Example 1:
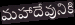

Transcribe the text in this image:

మహాదేవునికి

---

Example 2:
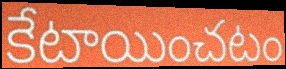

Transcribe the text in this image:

కేటాయించటం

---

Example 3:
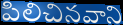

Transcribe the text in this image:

పిలిచినవాని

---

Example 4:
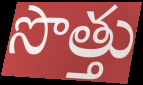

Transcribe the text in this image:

సొత్తు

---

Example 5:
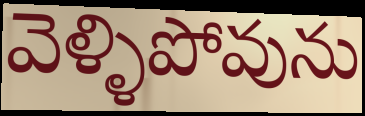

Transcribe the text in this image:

వెళ్ళిపోవును